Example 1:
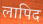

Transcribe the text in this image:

लापिद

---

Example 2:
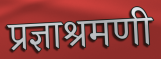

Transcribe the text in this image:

प्रज्ञाश्रमणी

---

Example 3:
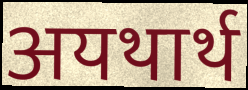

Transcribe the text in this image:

अयथार्थ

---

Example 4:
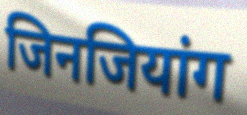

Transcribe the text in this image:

जिनजियांग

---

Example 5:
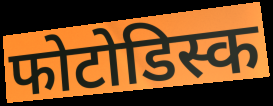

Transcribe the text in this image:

फोटोडिस्क